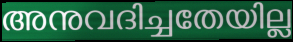
അനുവദിച്ചതേയില്ല